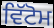
ਵਿੱਟੋਮ